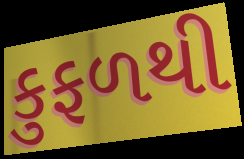
કુફળથી